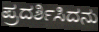
ಪ್ರದರ್ಶಿಸಿದನು